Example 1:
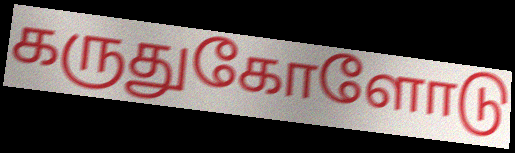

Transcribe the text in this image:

கருதுகோளோடு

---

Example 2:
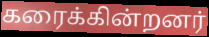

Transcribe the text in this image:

கரைக்கின்றனர்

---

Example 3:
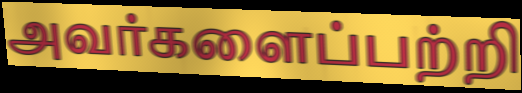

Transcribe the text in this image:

அவர்களைப்பற்றி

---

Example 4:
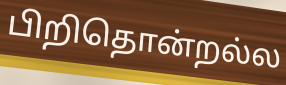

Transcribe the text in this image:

பிறிதொன்றல்ல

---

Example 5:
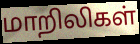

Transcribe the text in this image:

மாறிலிகள்